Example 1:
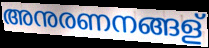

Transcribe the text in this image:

അനുരണനങ്ങള്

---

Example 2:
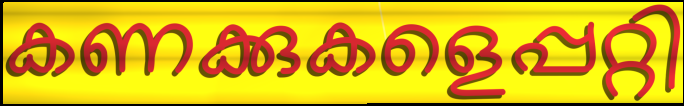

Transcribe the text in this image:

കണക്കുകളെപ്പറ്റി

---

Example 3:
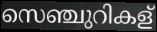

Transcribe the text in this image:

സെഞ്ചുറികള്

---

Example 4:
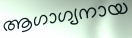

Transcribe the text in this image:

ആഗാഗ്യനായ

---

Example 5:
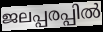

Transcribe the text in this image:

ജലപ്പരപ്പിൽ